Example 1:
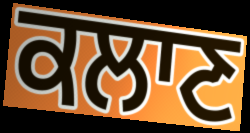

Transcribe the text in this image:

ਕਲਾਣ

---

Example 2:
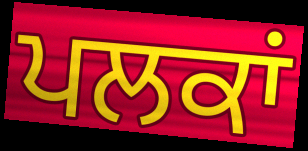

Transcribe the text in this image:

ਪਲਕਾਂ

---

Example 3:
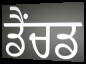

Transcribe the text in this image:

ਡੈਂਚਡ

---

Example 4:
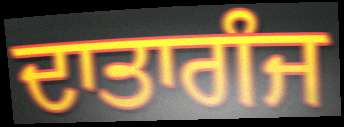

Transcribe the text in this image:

ਦਾਤਾਗੰਜ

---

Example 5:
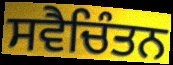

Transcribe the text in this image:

ਸਵੈਚਿੰਤਨ